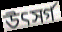
উৎসৰ্গ